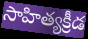
సాహిత్యక్రీడ